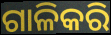
ଗାଳିକରି